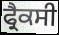
ਫ੍ਰੈਕਸੀ